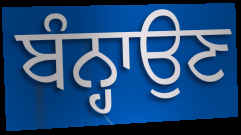
ਬੰਨ੍ਹਾਉਣ